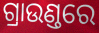
ଗ୍ରାଉଣ୍ଡରେ